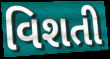
વિશતી